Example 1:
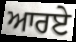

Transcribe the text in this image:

ਆਰਏ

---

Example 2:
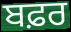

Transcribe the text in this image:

ਬਫ਼ਰ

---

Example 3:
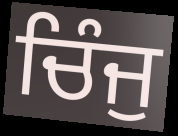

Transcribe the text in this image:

ਚਿੰਜੁ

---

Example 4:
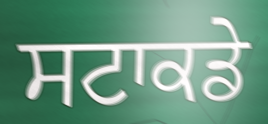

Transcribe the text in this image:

ਸਟਾਕਡੇ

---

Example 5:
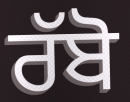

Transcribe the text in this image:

ਰੱਬੋ